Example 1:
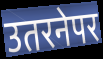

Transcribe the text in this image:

उतरनेपर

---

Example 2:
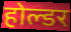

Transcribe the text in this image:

होल्डर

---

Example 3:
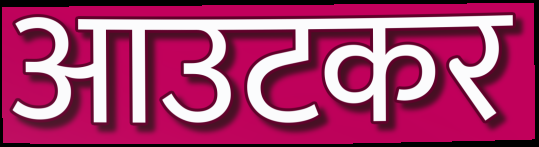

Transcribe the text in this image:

आउटकर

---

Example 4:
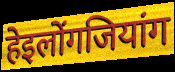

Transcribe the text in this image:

हेइलोंगजियांग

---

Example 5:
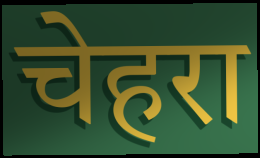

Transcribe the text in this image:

चेहरा